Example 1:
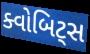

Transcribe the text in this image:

ક્વોબિટ્સ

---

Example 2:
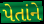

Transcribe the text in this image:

પેતાંને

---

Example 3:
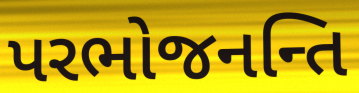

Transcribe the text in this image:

પરભોજનન્તિ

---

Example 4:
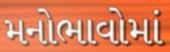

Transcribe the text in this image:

મનોભાવોમાં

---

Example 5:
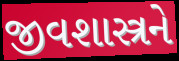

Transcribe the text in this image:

જીવશાસ્ત્રને